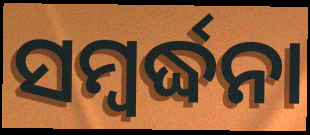
ସମ୍ୱର୍ଦ୍ଧନା